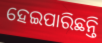
ହେଇପାରିଛନ୍ତି